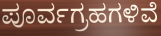
ಪೂರ್ವಗ್ರಹಗಳಿವೆ